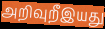
அறிவுறீஇயது